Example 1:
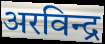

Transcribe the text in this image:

अरविन्द्र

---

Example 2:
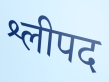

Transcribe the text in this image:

श्लीपद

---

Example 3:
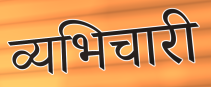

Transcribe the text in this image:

व्यभिचारी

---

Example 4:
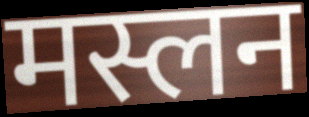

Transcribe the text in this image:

मस्लन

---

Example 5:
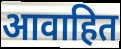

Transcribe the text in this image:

आवाहित